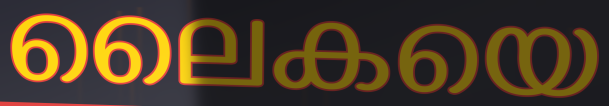
ലൈകയെ